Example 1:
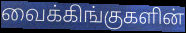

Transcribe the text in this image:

வைக்கிங்குகளின்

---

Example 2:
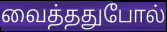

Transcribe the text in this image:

வைத்ததுபோல்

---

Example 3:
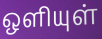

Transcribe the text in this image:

ஒளியுள்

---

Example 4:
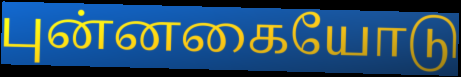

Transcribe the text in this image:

புன்னகையோடு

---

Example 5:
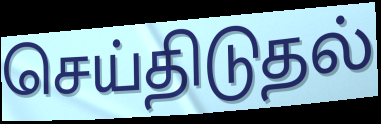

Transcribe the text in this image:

செய்திடுதல்